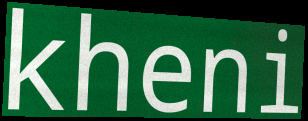
kheni